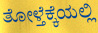
ತೋಳ್ತೆಕ್ಕೆಯಲ್ಲಿ